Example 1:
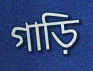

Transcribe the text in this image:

গাড়ি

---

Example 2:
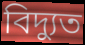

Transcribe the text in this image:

বিদ্যুত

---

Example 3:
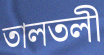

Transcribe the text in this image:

তালতলী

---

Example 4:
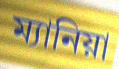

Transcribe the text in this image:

ম্যানিয়া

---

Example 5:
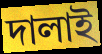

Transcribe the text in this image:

দালাই